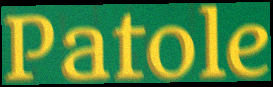
Patole